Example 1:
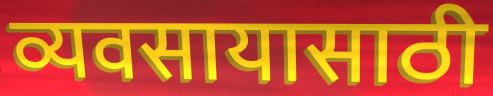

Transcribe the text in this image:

व्यवसायासाठी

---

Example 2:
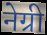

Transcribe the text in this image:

नेग्री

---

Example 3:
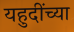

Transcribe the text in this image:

यहुदींच्या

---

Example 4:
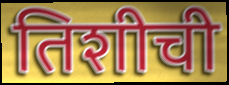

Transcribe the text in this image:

तिशीची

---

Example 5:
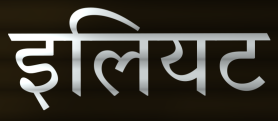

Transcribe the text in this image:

इलियट